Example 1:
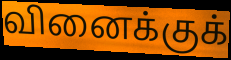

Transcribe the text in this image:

வினைக்குக்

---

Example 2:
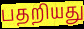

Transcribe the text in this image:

பதறியது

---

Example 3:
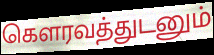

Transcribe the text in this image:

கௌரவத்துடனும்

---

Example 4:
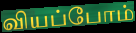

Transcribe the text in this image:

வியப்போம்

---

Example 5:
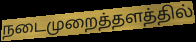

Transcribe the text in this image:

நடைமுறைத்தளத்தில்